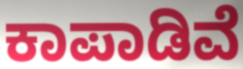
ಕಾಪಾಡಿವೆ